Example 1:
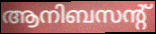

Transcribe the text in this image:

ആനിബസന്റ്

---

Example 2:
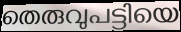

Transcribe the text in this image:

തെരുവുപട്ടിയെ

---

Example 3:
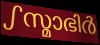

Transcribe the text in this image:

ഽസ്മാഭിർ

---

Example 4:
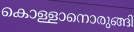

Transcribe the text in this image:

കൊള്ളാനൊരുങ്ങി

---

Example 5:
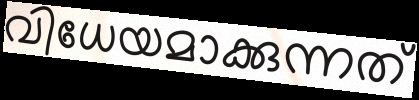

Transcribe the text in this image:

വിധേയമാക്കുന്നത്